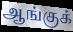
ஆங்குக்